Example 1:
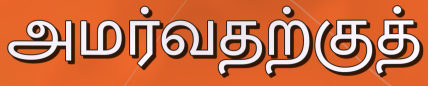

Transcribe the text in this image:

அமர்வதற்குத்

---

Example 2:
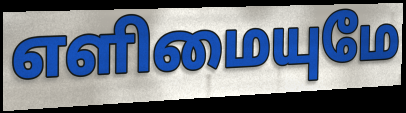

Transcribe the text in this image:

எளிமையுமே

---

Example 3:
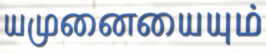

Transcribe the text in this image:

யமுனையையும்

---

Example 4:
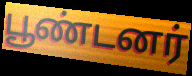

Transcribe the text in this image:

பூண்டனர்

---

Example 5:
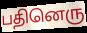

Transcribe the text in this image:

பதினெரு